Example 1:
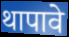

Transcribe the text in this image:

थापावे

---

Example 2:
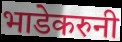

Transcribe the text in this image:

भाडेकरुनी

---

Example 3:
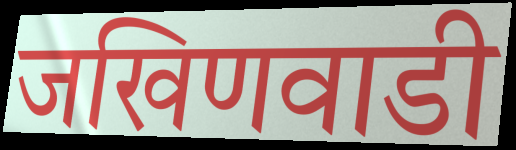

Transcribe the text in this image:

जखिणवाडी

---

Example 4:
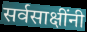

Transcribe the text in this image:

सर्वसाक्षींनी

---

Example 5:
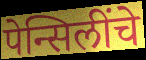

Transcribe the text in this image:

पेन्सिलींचे